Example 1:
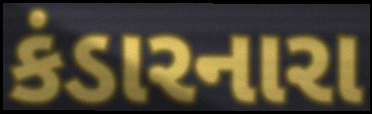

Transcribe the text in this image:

કંડારનારા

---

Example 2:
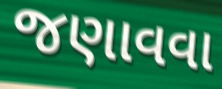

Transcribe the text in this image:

જણાવવા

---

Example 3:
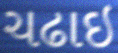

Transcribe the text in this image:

ચઢાઇ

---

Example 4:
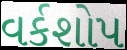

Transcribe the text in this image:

વર્કશોપ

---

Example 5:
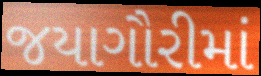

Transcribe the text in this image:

જયાગૌરીમાં